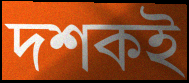
দশকই